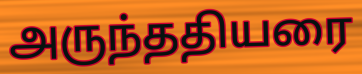
அருந்ததியரை